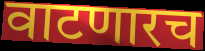
वाटणारच